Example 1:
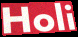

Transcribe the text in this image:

Holi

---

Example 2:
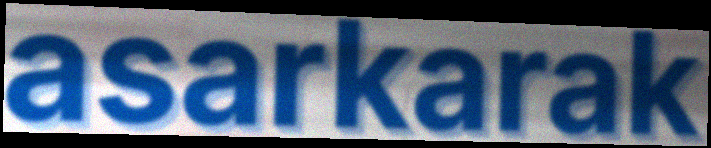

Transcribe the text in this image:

asarkarak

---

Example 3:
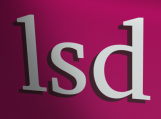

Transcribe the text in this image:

lsd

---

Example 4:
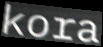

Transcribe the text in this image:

kora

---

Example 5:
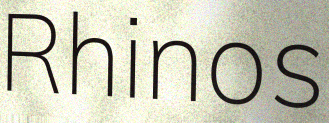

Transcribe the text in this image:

Rhinos